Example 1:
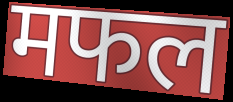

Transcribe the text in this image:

मफल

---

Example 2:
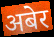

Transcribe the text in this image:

अबेर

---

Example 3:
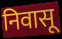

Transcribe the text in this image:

निवासू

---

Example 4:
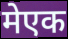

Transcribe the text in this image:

मेएक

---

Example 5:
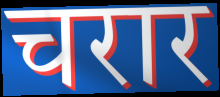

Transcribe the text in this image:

चरार